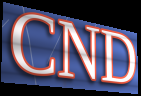
CND